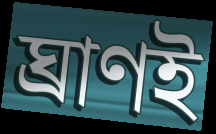
ঘ্রাণই